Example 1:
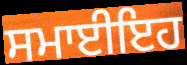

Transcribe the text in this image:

ਸਮਾਈਇਹ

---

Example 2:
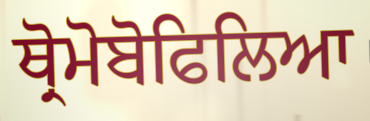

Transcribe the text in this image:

ਥ੍ਰੋਮੋਬੋਫਿਲਿਆ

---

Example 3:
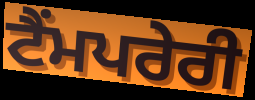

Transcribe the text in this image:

ਟੈਂਮਪਰੇਰੀ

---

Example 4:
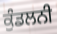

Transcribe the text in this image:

ਕੁੰਡਲਨੀ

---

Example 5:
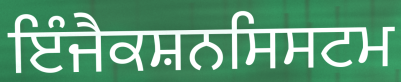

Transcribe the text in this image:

ਇੰਜੈਕਸ਼ਨਸਿਸਟਮ